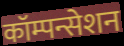
कॉम्पन्सेशन